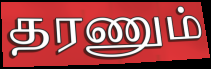
தரணும்